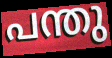
പന്തു